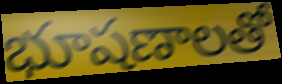
భూషణాలతో